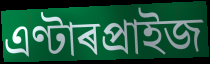
এণ্টাৰপ্ৰাইজ